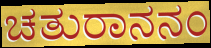
ಚತುರಾನನಂ